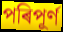
পৰিপূৰ্ণ